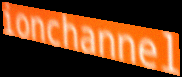
ionchannel